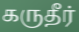
கருதீர்